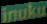
inuku